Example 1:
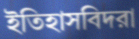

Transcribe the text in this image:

ইতিহাসবিদরা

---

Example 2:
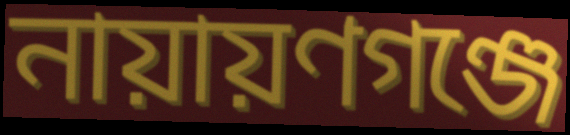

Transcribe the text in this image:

নায়ায়ণগঞ্জে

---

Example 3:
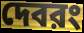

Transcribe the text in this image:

দেবরং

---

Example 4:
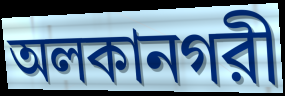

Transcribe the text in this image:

অলকানগরী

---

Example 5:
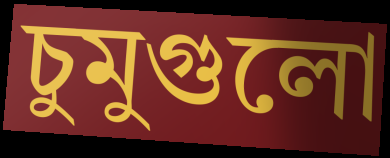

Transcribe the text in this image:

চুমুগুলো